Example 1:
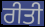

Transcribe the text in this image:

ਰੀਤੀ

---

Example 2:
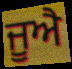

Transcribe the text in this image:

ਜੂਐ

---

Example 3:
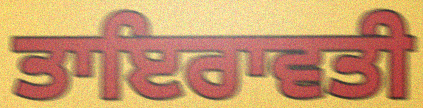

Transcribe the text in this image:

ਤਾਇਰਾਵਤੀ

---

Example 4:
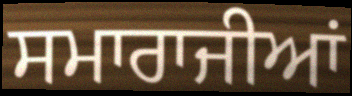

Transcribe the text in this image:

ਸਮਾਰਾਜੀਆਂ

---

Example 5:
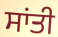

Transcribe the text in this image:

ਸਾਂਤੀ